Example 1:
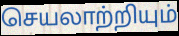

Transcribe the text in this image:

செயலாற்றியும்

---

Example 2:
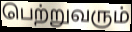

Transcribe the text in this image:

பெற்றுவரும்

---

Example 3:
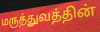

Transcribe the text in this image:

மருத்துவத்தின்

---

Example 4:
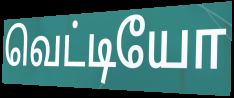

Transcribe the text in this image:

வெட்டியோ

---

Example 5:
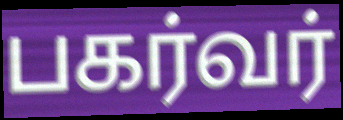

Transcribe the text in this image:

பகர்வர்